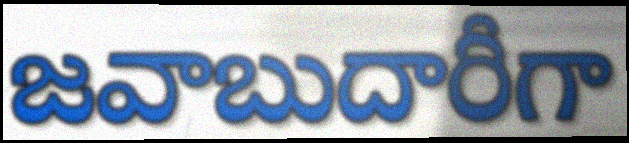
జవాబుదారీగా